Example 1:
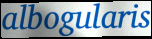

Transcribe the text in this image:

albogularis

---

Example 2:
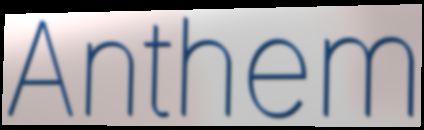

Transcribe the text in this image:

Anthem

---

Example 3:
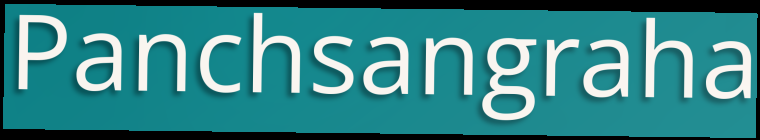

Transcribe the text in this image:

Panchsangraha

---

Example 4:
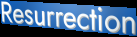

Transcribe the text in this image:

Resurrection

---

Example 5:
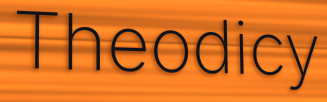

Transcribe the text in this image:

Theodicy